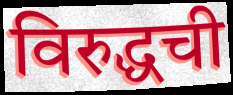
विरुद्धची